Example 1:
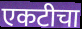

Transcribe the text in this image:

एकटीचा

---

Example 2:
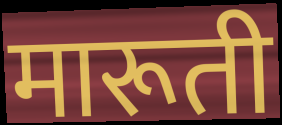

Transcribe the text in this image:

मारूती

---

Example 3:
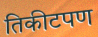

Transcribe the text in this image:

तिकीटपण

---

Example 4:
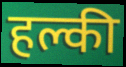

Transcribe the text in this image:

हल्की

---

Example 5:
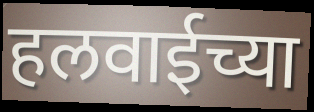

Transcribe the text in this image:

हलवाईच्या